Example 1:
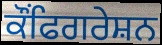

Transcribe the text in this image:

ਕੌਂਫਿਗਰੇਸ਼ਨ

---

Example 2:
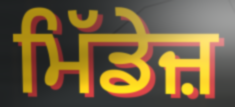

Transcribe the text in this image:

ਮਿੱਡੇਜ਼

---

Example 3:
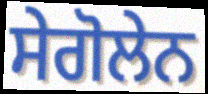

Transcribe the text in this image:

ਸੇਗੋਲੇਨ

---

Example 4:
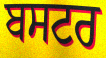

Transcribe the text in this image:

ਬਸਟਰ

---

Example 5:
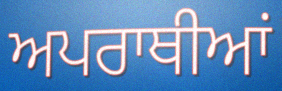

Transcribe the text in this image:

ਅਪਰਾਥੀਆਂ